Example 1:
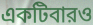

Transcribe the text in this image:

একটিবারও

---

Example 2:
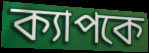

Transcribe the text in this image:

ক্যাপকে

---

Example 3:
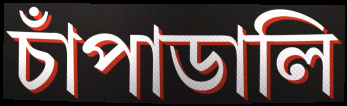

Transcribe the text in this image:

চাঁপাডালি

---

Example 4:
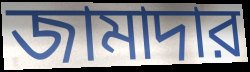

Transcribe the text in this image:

জামাদার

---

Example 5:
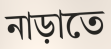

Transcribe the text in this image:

নাড়াতে